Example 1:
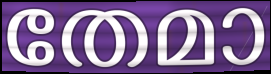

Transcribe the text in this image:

തേമാ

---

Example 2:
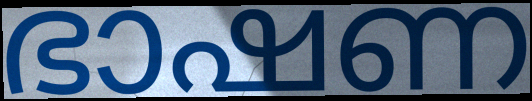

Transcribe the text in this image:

ഭാഷണ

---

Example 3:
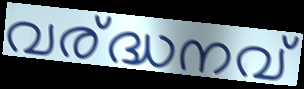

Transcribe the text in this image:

വര്ദ്ധനവ്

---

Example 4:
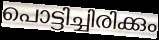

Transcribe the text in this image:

പൊട്ടിച്ചിരിക്കും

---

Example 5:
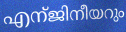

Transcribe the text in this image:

എന്ജിനീയറും